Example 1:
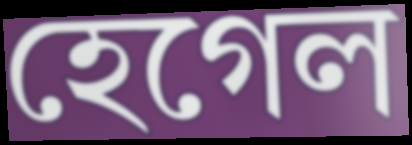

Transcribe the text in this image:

হেগেল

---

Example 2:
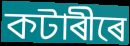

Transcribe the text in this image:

কটাৰীৰে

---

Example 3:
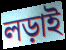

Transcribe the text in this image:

লড়াই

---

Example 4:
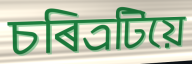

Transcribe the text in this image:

চৰিত্ৰটিয়ে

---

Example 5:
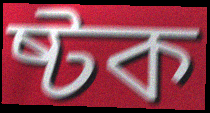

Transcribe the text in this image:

ষ্টক